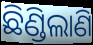
ଛିଣ୍ଡିଲାଣି